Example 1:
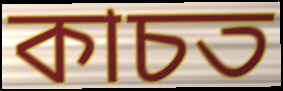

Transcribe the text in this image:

কাচত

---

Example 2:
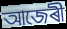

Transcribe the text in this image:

আজেৰী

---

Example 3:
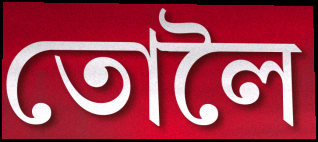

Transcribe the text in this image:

তোলৈ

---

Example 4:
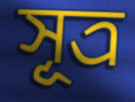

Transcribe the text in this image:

সূত্ৰ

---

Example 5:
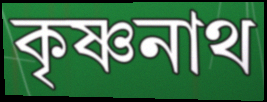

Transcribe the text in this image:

কৃষ্ণনাথ